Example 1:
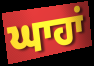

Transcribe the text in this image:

ਘਾਹਾਂ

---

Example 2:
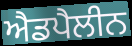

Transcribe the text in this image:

ਐਡਪੈਲੀਨ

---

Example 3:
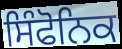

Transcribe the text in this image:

ਸਿੰਫੋਨਿਕ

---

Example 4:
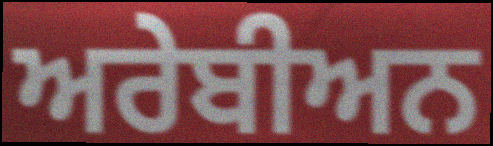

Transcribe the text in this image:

ਅਰੇਬੀਅਨ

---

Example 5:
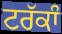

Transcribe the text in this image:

ਟਰੱਕਾੰ